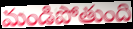
మండిపోతుంది